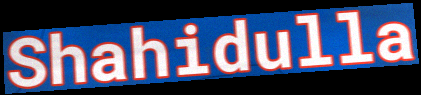
Shahidulla